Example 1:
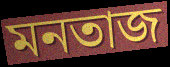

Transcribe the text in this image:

মনতাজ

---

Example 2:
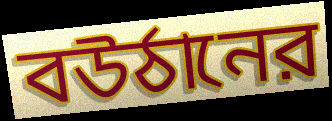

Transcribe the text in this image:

বউঠানের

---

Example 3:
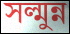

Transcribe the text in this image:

সল্মুন্ন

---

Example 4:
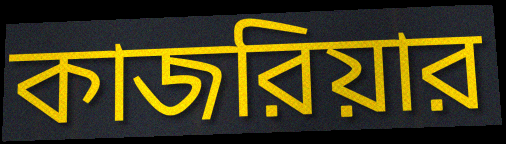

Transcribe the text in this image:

কাজরিয়ার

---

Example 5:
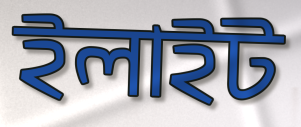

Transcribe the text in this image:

ইলাইট